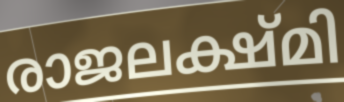
രാജലക്ഷ്മി